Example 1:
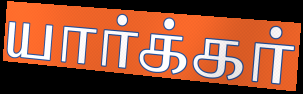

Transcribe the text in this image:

யார்க்கர்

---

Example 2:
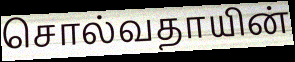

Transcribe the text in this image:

சொல்வதாயின்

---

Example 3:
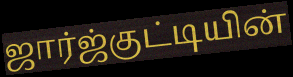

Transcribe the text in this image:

ஜார்ஜ்குட்டியின்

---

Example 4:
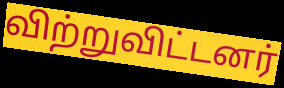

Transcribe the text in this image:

விற்றுவிட்டனர்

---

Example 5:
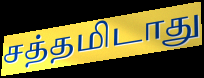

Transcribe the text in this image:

சத்தமிடாது